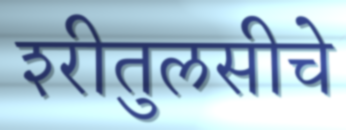
श्रीतुलसीचे